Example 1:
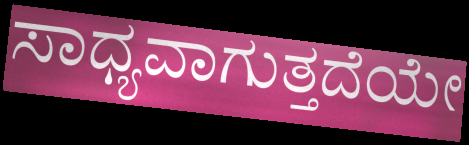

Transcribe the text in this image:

ಸಾಧ್ಯವಾಗುತ್ತದೆಯೇ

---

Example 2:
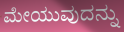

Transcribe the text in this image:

ಮೇಯುವುದನ್ನು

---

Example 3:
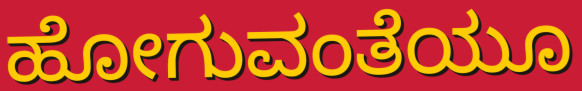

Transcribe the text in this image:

ಹೋಗುವಂತೆಯೂ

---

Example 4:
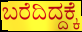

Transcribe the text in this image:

ಬರೆದಿದ್ದಕ್ಕೆ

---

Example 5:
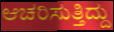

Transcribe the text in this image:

ಆಚರಿಸುತ್ತಿದ್ದು